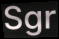
Sgr